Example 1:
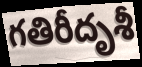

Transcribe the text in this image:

గతిరీదృశీ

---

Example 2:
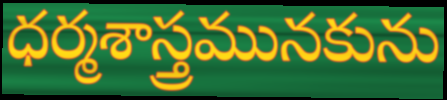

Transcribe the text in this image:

ధర్మశాస్త్రమునకును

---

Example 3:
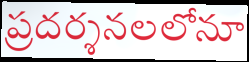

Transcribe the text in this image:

ప్రదర్శనలలోనూ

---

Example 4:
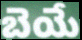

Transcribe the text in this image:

బెయే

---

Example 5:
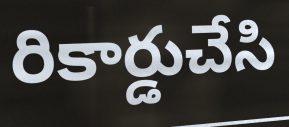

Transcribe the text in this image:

రికార్డుచేసి